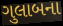
ગુલાબના